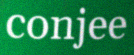
conjee